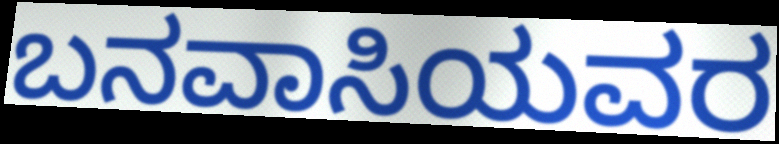
ಬನವಾಸಿಯವರ